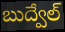
బుద్వేల్